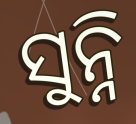
ସୁନ୍ନି